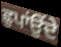
ਛੁਪਾਂਉਂਦੇ